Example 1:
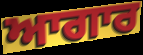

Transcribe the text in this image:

ਆਗਾਰ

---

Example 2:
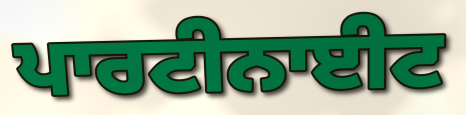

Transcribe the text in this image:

ਪਾਰਟੀਨਾਈਟ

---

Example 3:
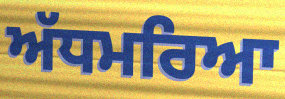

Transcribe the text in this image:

ਅੱਧਮਰਿਆ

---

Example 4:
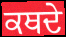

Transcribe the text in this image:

ਕਥਦੇ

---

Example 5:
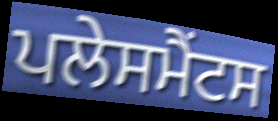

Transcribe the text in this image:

ਪਲੇਸਮੈਂਟਸ